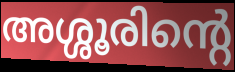
അശ്ശൂരിന്റെ